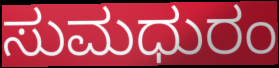
ಸುಮಧುರಂ